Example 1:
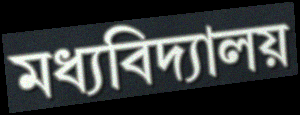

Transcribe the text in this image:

মধ্যবিদ্যালয়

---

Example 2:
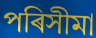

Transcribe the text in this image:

পৰিসীমা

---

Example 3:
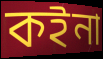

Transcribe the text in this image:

কইনা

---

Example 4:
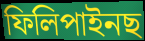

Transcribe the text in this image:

ফিলিপাইনছ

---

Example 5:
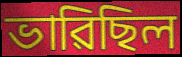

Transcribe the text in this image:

ভাৱিছিল